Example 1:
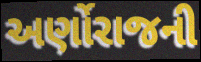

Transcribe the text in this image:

અર્ણોરાજની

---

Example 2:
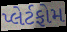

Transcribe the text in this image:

પ્લેર્ટફોમ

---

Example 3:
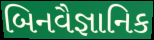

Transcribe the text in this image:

બિનવૈજ્ઞાનિક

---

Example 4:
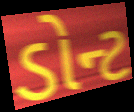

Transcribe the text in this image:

ડોન્ટ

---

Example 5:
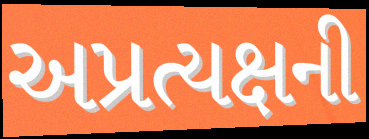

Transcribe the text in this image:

અપ્રત્યક્ષની